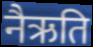
नैऋति